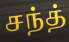
சந்த்